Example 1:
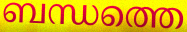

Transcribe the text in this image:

ബന്ധത്തെ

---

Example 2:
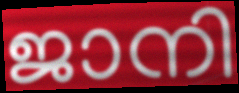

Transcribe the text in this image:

ജാനി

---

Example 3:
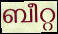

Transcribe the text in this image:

ബീറ്റ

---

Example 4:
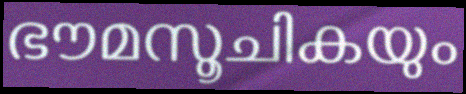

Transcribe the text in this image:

ഭൗമസൂചികയും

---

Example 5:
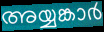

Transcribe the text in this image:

അയ്യങ്കാർ